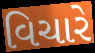
વિચારે